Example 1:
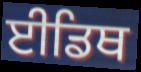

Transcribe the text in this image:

ਈਡਿਥ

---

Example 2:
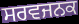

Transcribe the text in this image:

ਸਰਵਜਨਕ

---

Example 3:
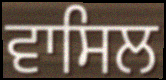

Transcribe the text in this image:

ਵਾਸਿਲ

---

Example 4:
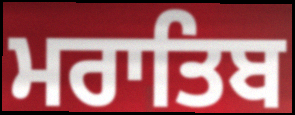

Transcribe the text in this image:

ਮਰਾਤਿਬ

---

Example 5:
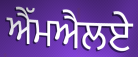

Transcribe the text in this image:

ਐੱਮਐਲਏ